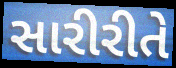
સારીરીતે